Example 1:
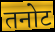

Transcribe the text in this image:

तनोट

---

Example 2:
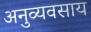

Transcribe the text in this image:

अनुव्यवसाय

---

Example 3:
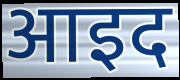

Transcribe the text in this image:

आइद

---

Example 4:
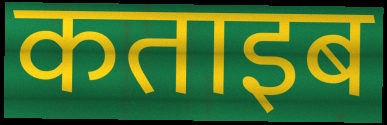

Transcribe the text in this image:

कताइब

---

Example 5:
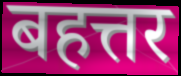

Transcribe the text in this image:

बहत्तर